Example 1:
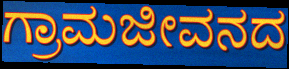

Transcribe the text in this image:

ಗ್ರಾಮಜೀವನದ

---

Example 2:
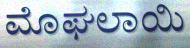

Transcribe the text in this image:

ಮೊಘಲಾಯಿ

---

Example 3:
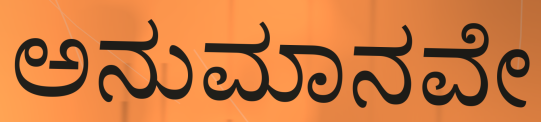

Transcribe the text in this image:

ಅನುಮಾನವೇ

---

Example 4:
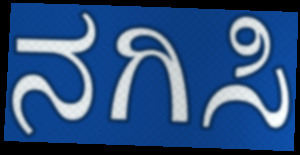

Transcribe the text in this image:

ನಗಿಸಿ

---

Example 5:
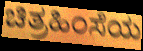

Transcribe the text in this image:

ಚಿತ್ರಹಿಂಸೆಯ